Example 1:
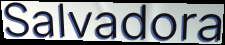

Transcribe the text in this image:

Salvadora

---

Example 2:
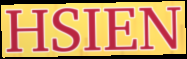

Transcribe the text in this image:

HSIEN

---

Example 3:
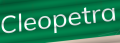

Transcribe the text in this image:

Cleopetra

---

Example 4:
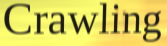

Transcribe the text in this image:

Crawling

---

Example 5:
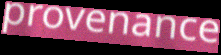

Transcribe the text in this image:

provenance